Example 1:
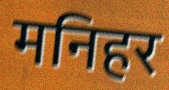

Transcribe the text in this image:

मनिहर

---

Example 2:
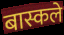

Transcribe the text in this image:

बास्कले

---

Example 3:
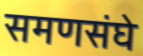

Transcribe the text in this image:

समणसंघे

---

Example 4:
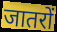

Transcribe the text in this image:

जातरों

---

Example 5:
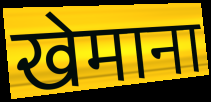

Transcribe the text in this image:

खेमाना